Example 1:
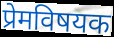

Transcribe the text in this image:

प्रेमविषयक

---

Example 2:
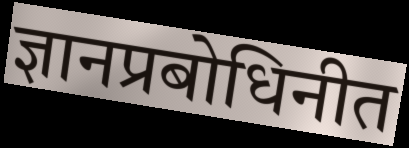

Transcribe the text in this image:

ज्ञानप्रबोधिनीत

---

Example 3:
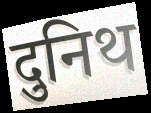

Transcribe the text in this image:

दुनिथ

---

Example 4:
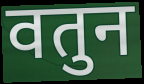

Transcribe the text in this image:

वतुन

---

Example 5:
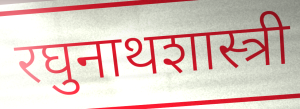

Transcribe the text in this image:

रघुनाथशास्त्री